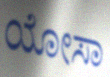
ಯೋಸಾ